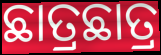
ଛାତ୍ରଛାତ୍ର